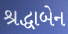
શ્રદ્ધાબેન